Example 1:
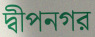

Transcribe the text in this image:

দ্বীপনগর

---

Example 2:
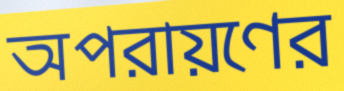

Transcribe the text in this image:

অপরায়ণের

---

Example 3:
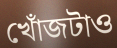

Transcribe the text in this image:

খোঁজটাও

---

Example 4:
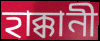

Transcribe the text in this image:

হাক্কানী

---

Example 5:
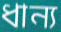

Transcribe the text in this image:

ধান্য